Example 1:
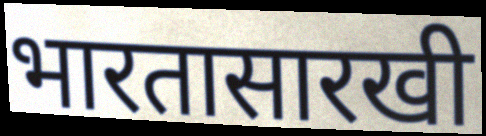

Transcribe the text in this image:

भारतासारखी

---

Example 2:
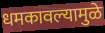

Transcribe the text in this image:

धमकावल्यामुळे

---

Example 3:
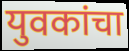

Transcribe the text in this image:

युवकांचा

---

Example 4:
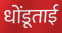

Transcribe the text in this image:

धोंडूताई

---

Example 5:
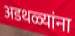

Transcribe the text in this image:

अडथळ्यांना